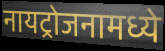
नायट्रोजनामध्ये